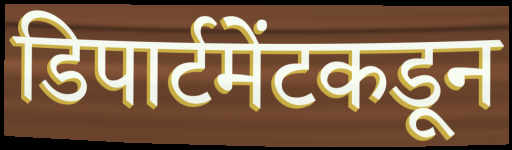
डिपार्टमेंटकडून